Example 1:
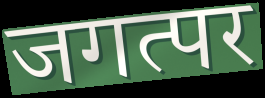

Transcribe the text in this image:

जगत्पर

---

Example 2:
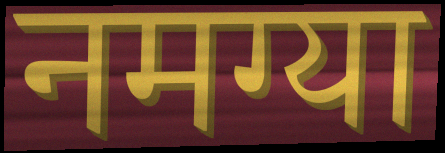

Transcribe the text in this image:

नमग्या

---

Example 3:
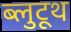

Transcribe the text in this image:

ब्लुटूथ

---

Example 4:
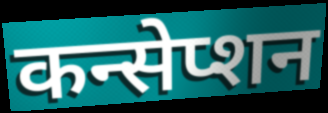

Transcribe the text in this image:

कन्सेप्शन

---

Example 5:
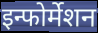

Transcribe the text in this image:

इन्फोर्मेशन